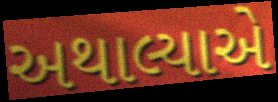
અથાલ્યાએ